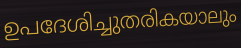
ഉപദേശിച്ചുതരികയാലും